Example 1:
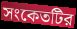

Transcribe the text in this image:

সংকেতটির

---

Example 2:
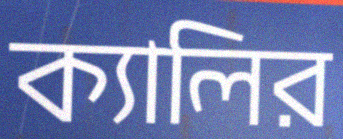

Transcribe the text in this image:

ক্যালির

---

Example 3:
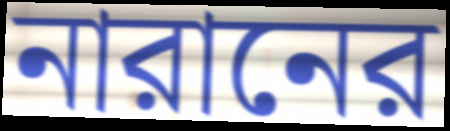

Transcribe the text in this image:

নারানের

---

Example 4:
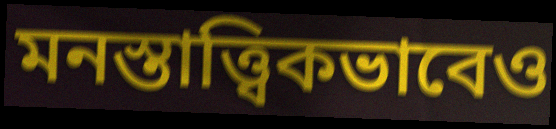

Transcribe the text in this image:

মনস্তাত্ত্বিকভাবেও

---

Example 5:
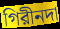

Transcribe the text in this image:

গিরীনদা